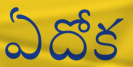
ఏదోక